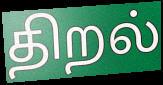
திறல்